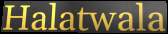
Halatwala